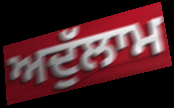
ਅਦੁੱਲਾਮ